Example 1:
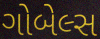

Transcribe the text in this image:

ગોબેલ્સ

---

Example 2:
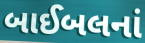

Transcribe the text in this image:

બાઈબલનાં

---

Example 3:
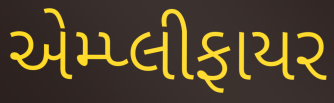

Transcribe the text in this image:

એમ્પ્લીફાયર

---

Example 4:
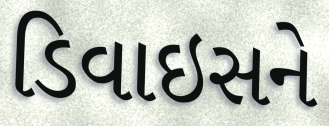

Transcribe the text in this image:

ડિવાઇસને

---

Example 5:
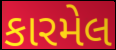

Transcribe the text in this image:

કારમેલ